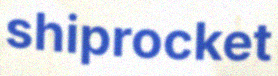
shiprocket